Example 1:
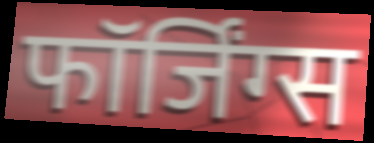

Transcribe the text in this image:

फॉर्जिंग्स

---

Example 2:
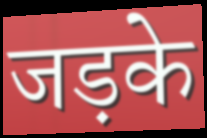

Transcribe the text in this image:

जड़के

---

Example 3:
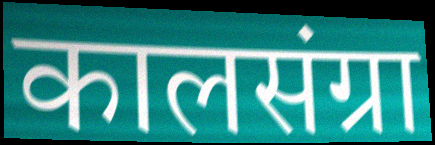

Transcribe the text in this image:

कालसंग्रा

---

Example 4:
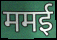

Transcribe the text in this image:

ममई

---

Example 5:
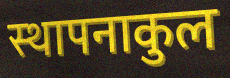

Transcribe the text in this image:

स्थापनाकुल